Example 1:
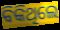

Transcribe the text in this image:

ବିକିଥିଲେ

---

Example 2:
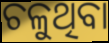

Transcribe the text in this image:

ଚଳୁଥିବା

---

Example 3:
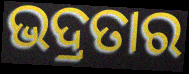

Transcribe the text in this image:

ଭଦ୍ରତାର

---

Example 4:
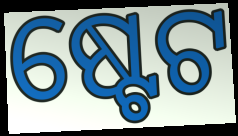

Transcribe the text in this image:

ଷ୍ଟେଟ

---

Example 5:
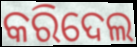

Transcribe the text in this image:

କରିଦେଲ